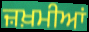
ਜ਼ਖ਼ਮੀਆਂ